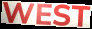
WEST